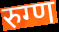
रुग्ण